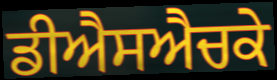
ਡੀਐਸਐਚਕੇ